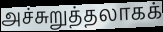
அச்சுறுத்தலாகக்